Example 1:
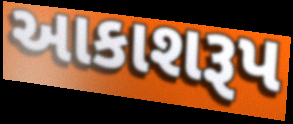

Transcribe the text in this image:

આકાશરૂપ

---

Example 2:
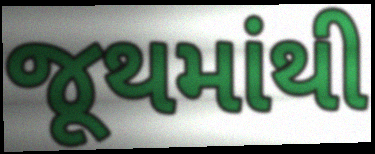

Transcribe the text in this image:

જૂથમાંથી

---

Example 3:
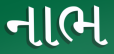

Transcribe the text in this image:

નાભ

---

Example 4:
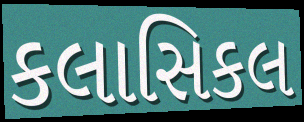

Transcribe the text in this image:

કલાસિકલ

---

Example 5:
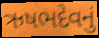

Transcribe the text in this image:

ઋષભદેવનું